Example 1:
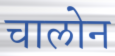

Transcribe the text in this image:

चालोन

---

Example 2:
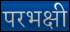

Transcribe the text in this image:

परभक्षी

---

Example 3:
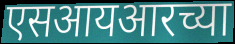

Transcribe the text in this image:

एसआयआरच्या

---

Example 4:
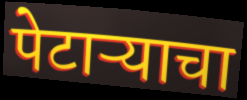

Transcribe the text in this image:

पेटाऱ्याचा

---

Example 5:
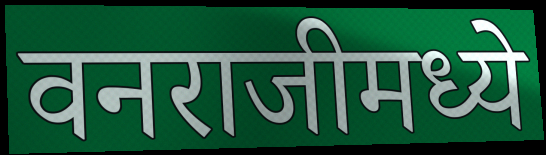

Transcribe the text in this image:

वनराजीमध्ये